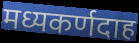
मध्यकर्णदाह